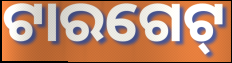
ଟାରଗେଟ୍